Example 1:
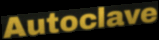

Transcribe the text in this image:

Autoclave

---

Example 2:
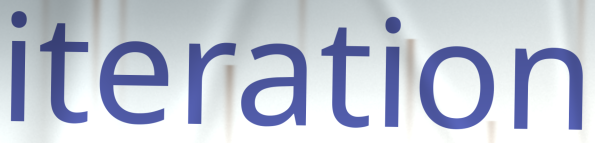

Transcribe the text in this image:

iteration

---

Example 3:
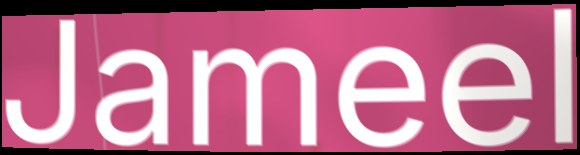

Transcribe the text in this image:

Jameel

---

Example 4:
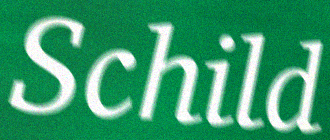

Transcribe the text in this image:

Schild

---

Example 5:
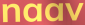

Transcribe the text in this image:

naav